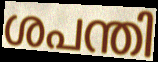
ശപന്തി